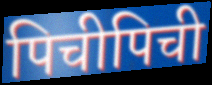
पिचीपिची